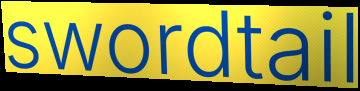
swordtail